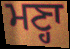
ਮਣ੍ਹਾ